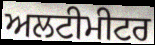
ਅਲਟੀਮੀਟਰ